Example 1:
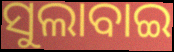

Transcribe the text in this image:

ସୁଲାବାଇ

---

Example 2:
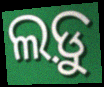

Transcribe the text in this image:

ଲଡ଼ୁ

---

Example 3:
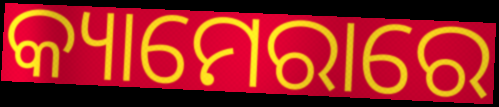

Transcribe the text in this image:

କ୍ୟାମେରାରେ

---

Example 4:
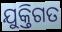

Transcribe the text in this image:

ଯୁକ୍ତିଗତ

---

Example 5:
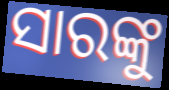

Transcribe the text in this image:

ସାରଙ୍କୁ